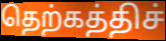
தெற்கத்திச்